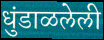
धुंडाळलेली